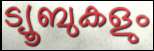
ട്യൂബുകളും